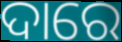
ଦାରେ